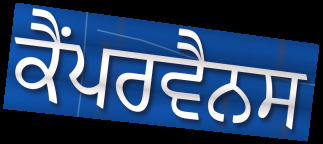
ਕੈਂਪਰਵੈਨਸ